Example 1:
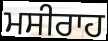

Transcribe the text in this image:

ਮਸੀਰਾਹ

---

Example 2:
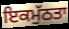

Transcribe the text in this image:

ਇਕਮੁੱਠਤਾ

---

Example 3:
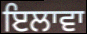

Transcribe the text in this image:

ਇਲਾਵਾ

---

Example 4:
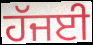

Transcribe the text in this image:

ਹੱਜਈ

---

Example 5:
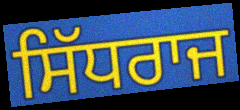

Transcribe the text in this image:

ਸਿੱਧਰਾਜ